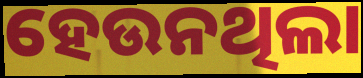
ହେଉନଥିଲା